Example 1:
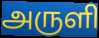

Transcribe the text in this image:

அருளி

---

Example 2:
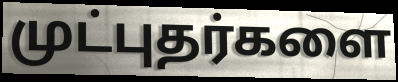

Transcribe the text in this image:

முட்புதர்களை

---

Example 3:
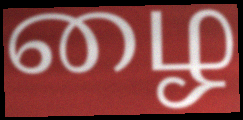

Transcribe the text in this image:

ழை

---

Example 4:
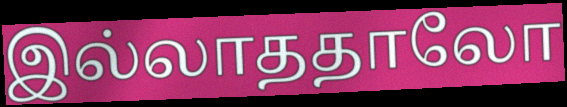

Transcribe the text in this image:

இல்லாததாலோ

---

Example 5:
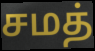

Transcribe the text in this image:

சமத்